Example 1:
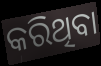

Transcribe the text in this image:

କରିଥିବା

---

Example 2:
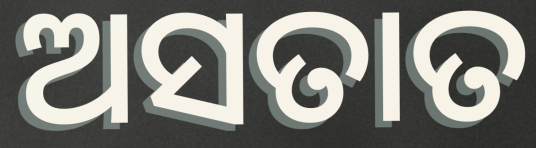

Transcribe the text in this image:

ଅସତାତ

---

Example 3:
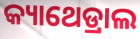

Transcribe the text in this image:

କ୍ୟାଥେଡ୍ରାଲ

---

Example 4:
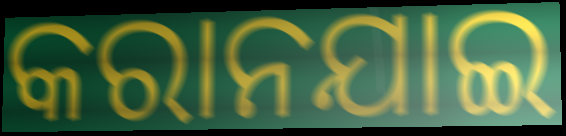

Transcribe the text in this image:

କରାନଯାଇ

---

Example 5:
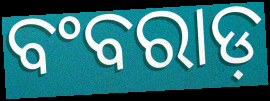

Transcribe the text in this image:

ବଂବରାଡ଼